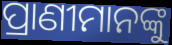
ପ୍ରାଣୀମାନଙ୍କୁ